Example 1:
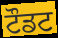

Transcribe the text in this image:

ਟੌਡਟ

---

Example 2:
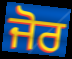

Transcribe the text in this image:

ਜੋਰ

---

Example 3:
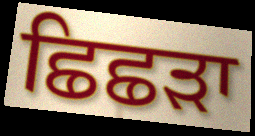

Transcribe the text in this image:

ਛਿਛੜਾ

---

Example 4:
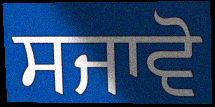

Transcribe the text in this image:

ਸਜਾਵੋ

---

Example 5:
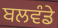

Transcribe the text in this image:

ਬਲਵੰਡੇ